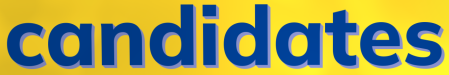
candidates